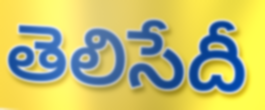
తెలిసేదీ